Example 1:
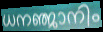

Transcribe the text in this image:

ധനഞ്ജാനിം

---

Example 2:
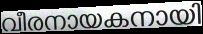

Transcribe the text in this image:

വീരനായകനായി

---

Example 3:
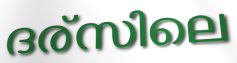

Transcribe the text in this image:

ദര്സിലെ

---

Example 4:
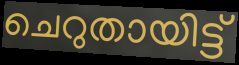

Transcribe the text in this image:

ചെറുതായിട്ട്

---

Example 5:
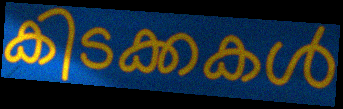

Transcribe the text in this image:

കിടക്കകൾ